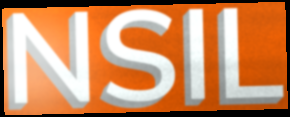
NSIL